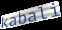
kabali